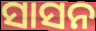
ସାସନ